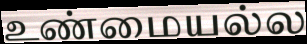
உண்மையல்ல